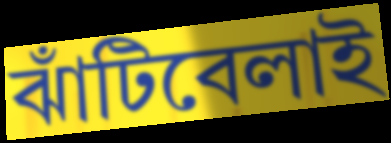
ঝাঁটিবেলাই